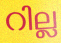
റില്ല